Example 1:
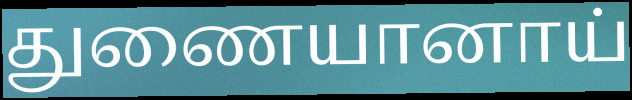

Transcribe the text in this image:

துணையானாய்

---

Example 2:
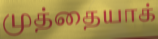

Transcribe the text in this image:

முத்தையாக்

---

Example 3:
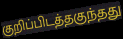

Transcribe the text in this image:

குறிப்பிடத்தகுந்தது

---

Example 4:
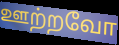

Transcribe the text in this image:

ஊற்றவோ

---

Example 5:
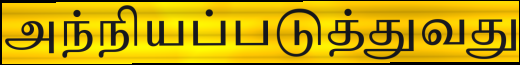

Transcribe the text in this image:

அந்நியப்படுத்துவது